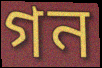
গন